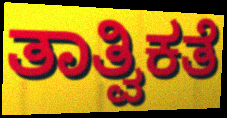
ತಾತ್ವಿಕತೆ